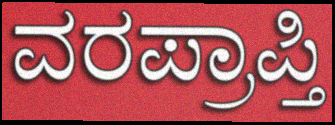
ವರಪ್ರಾಪ್ತಿ